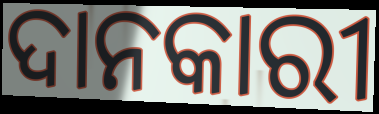
ଦାନକାରୀ